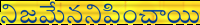
నిజమేననిపించాయి